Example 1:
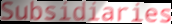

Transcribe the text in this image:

Subsidiaries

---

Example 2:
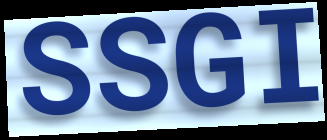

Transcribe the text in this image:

SSGI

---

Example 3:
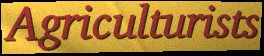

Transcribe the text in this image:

Agriculturists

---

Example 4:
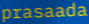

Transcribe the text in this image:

prasaada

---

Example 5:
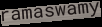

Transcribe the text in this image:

ramaswamy